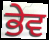
ਭੇਵ